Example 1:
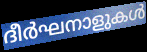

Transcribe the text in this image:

ദീർഘനാളുകൾ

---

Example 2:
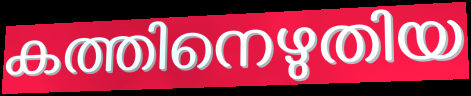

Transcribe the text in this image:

കത്തിനെഴുതിയ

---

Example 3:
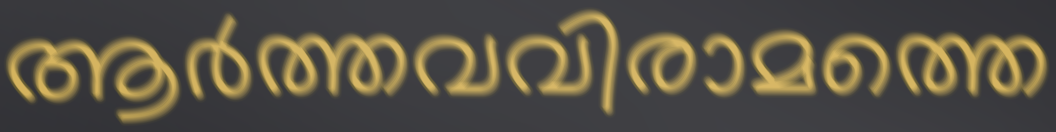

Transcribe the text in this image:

ആർത്തവവിരാമത്തെ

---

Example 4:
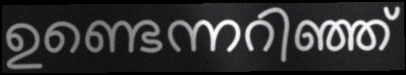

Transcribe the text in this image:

ഉണ്ടെന്നറിഞ്ഞ്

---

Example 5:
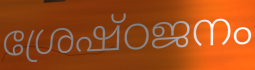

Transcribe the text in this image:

ശ്രേഷ്ഠജനം